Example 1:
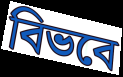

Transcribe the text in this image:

বিভবে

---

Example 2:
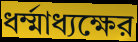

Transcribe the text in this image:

ধর্ম্মাধ্যক্ষের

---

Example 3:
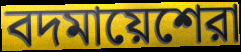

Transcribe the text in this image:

বদমায়েশেরা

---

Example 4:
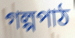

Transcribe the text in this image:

গল্পপাঠ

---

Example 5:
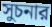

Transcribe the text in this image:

সুচনার